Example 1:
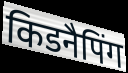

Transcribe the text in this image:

किडनैपिंग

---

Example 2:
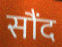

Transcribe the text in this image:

सौंद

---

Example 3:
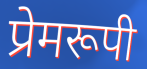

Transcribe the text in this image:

प्रेमरूपी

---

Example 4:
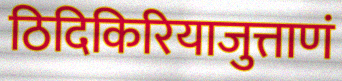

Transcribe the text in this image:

ठिदिकिरियाजुत्ताणं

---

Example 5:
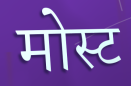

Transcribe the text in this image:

मोस्ट